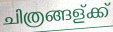
ചിത്രങ്ങള്ക്ക്